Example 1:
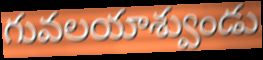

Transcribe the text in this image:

గువలయాశ్వుండు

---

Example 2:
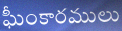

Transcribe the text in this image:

ఘీంకారములు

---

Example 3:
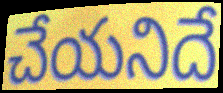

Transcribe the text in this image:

చేయనిదే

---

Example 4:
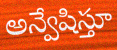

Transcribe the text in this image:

అన్వేషిస్తూ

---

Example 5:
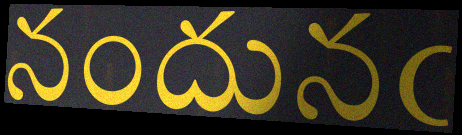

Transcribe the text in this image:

నందునఁ